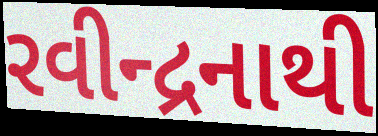
રવીન્દ્રનાથી